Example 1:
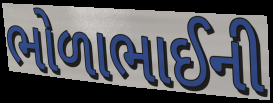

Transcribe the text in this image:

ભોળાભાઈની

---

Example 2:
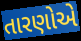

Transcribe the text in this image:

તારણોએ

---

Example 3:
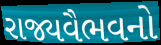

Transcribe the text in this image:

રાજ્યવૈભવનો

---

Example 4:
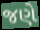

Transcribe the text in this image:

જણે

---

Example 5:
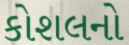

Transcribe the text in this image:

કોશલનો